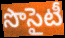
సొసైటీ